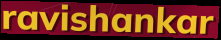
ravishankar